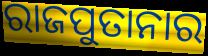
ରାଜପୁତାନାର